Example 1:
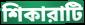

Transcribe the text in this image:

শিকারাটি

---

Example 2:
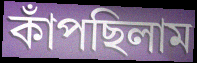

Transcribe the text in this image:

কাঁপছিলাম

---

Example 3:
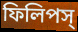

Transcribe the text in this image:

ফিলিপস্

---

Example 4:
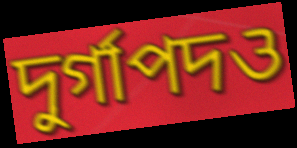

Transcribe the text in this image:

দুর্গাপদও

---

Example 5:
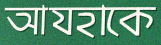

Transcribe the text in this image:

আযহাকে